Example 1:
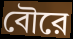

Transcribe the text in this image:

বৌরে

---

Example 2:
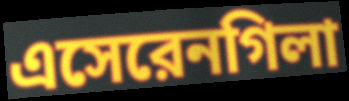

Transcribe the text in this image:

এসেরেনগিলা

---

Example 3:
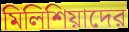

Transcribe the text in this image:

মিলিশিয়াদের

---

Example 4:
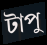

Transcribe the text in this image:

টাপু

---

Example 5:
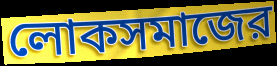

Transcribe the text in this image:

লোকসমাজের